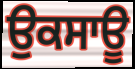
ਉਕਸਾਊ